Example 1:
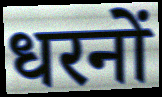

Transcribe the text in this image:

धरनों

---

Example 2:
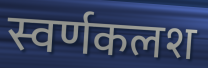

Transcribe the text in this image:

स्वर्णकलश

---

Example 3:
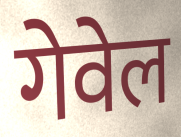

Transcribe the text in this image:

गेवेल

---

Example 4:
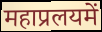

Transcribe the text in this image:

महाप्रलयमें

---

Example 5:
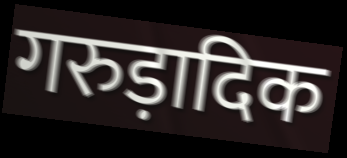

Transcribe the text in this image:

गरुड़ादिक